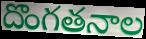
దొంగతనాల